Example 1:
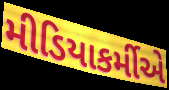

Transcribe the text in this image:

મીડિયાકર્મીએ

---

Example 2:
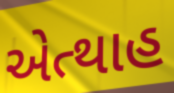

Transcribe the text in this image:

એત્થાહ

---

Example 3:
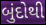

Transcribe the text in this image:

બુંદોથી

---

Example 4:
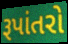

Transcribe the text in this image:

રૂપાંતરો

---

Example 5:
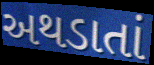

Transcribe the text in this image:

અથડાતાં